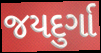
જયદુર્ગા